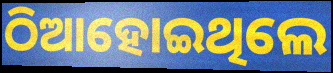
ଠିଆହୋଇଥିଲେ